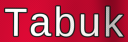
Tabuk